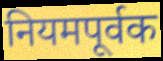
नियमपूर्वक